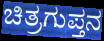
ಚಿತ್ರಗುಪ್ತನ